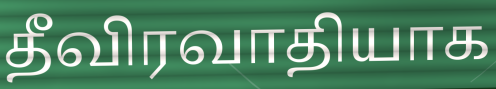
தீவிரவாதியாக